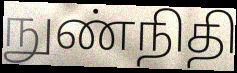
நுண்நிதி